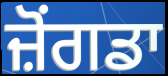
ਜ਼ੋਂਗਡਾ